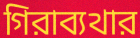
গিরাব্যথার